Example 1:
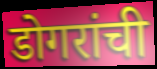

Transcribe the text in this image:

डोगरांची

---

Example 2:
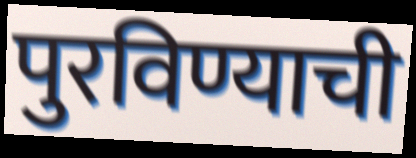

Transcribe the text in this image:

पुरविण्याची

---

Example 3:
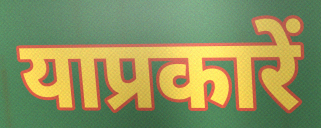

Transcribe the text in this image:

याप्रकारें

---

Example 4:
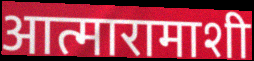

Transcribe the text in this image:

आत्मारामाशी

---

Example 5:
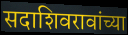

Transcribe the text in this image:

सदाशिवरावांच्या